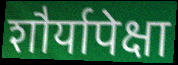
शौर्यापेक्षा